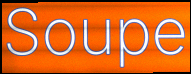
Soupe